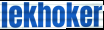
lekhoker